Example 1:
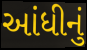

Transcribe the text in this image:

આંધીનું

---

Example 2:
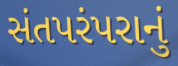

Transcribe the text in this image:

સંતપરંપરાનું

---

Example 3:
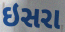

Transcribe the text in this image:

ઇસરા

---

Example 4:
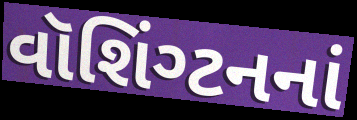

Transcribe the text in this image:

વૉશિંગ્ટનનાં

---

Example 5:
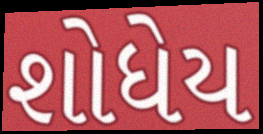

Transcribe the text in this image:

શોધેય